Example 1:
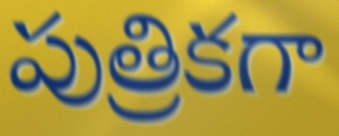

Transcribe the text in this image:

పుత్రికగా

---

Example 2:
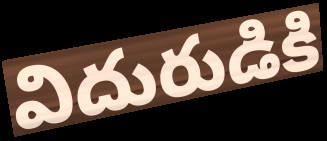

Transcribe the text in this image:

విదురుడికి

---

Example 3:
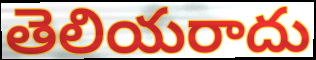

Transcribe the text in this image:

తెలియరాదు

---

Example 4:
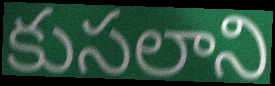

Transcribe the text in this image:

కుసలాని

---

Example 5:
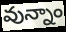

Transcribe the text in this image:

వున్నాం